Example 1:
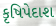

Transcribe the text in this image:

કૃષિપેદાશ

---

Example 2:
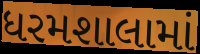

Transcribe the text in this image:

ધરમશાલામાં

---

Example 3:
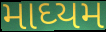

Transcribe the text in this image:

માઘ્યમ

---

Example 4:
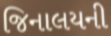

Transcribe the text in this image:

જિનાલયની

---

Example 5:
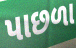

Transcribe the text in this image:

પાછળા